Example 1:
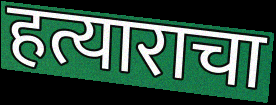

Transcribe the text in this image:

हत्याराचा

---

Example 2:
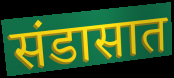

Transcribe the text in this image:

संडासात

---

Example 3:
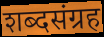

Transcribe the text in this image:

शब्दसंग्रह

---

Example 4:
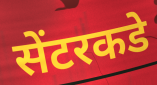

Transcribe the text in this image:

सेंटरकडे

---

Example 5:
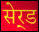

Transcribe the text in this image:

सेर्ड